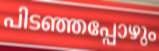
പിടഞ്ഞപ്പോഴും